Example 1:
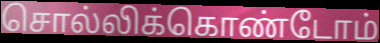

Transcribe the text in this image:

சொல்லிக்கொண்டோம்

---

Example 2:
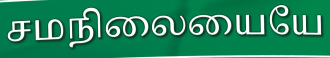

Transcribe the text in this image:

சமநிலையையே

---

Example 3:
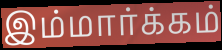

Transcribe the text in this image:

இம்மார்க்கம்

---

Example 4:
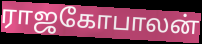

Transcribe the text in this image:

ராஜகோபாலன்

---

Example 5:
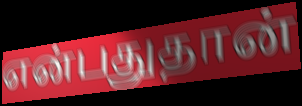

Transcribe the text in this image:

என்பதுதான்